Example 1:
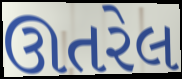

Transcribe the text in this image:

ઊતરેલ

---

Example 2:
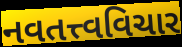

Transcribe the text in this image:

નવતત્ત્વવિચાર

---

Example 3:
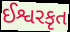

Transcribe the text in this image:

ઈશ્વરકૃત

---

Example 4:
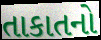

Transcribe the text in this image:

તાકાતનો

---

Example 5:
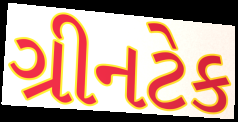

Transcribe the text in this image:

ગ્રીનટેક